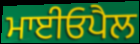
ਮਾਈਓਪੈਲ